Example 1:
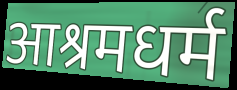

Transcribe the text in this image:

आश्रमधर्म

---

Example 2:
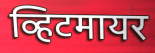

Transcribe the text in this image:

व्हिटमायर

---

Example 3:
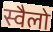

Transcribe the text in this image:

स्वैलो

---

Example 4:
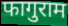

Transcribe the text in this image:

फागुराम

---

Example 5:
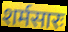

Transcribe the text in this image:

शर्मसारः